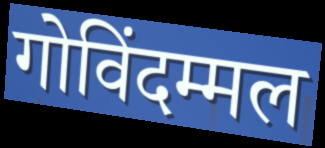
गोविंदम्मल